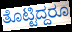
ತೊಟ್ಟಿದ್ದರೂ